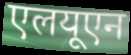
एलयूएन